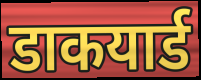
डाकयार्ड